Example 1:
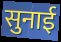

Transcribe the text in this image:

सुनाई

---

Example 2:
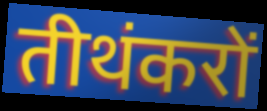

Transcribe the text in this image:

तीथंकरों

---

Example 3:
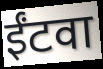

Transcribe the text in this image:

ईंटवा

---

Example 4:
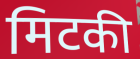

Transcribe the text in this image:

मिटकी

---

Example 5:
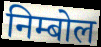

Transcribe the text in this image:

निम्बोल